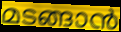
മടങ്ങാൻ